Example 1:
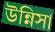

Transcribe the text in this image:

উন্নিসা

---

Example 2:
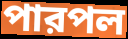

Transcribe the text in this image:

পারপল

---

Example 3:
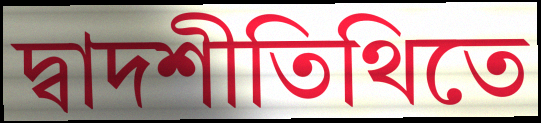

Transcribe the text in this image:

দ্বাদশীতিথিতে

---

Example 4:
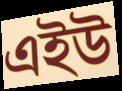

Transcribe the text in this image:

এইউ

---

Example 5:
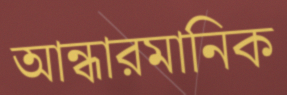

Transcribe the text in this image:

আন্ধারমানিক